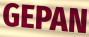
GEPAN